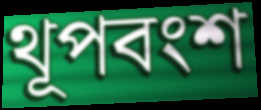
থূপবংশ